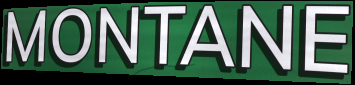
MONTANE